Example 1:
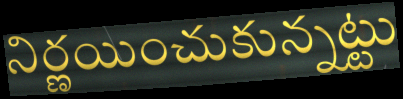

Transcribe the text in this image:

నిర్ణయించుకున్నట్టు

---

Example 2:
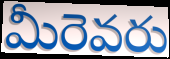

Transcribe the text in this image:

మీరెవరు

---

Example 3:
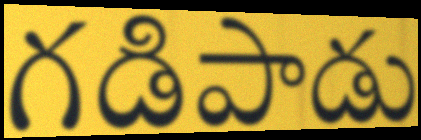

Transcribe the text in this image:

గడిపాడు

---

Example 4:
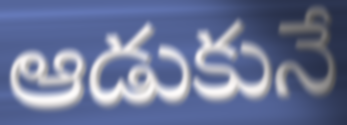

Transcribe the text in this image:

ఆడుకునే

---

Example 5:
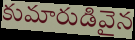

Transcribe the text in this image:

కుమారుడివైన